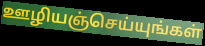
ஊழியஞ்செய்யுங்கள்